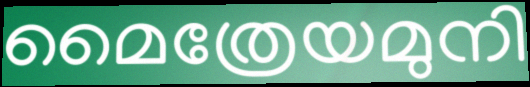
മൈത്രേയമുനി